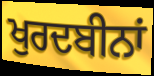
ਖੁਰਦਬੀਨਾਂ